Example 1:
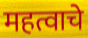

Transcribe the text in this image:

महत्वाचे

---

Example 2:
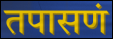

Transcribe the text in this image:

तपासणं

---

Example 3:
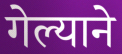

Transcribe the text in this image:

गेल्‍याने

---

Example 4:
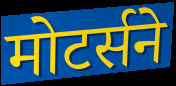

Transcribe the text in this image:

मोटर्सने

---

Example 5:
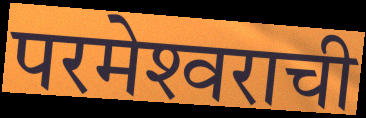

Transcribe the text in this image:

परमेश्‍वराची